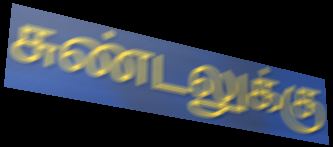
சுண்டலுக்கு